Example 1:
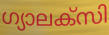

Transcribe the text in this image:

ഗ്യാലക്സി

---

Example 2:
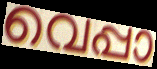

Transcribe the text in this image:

വെപ്പാ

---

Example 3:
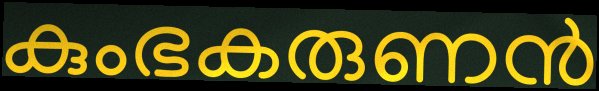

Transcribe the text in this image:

കുംഭകരുണൻ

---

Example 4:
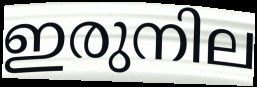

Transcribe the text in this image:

ഇരുനില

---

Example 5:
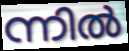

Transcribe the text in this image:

ന്നിൽ